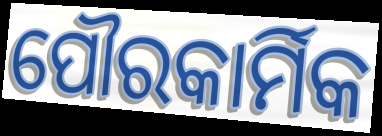
ପୌରକାର୍ମିକ